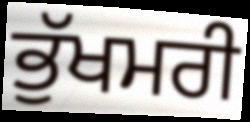
ਭੁੱਖਮਰੀ